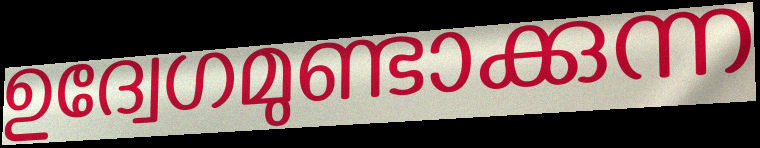
ഉദ്വേഗമുണ്ടാക്കുന്ന